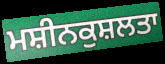
ਮਸ਼ੀਨਕੁਸ਼ਲਤਾ